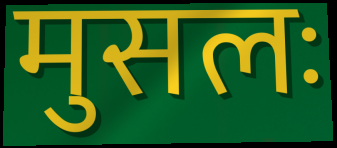
मुसलः